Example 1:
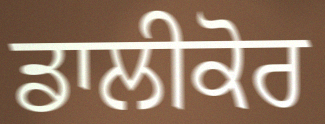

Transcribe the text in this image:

ਡਾਲੀਕੋਰ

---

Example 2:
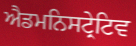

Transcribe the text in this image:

ਐਡਮਨਿਸਟ੍ਰੇਟਿਵ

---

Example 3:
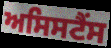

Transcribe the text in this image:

ਅਸਿਸਟੈਂਸ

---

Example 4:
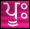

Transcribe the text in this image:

ਪੂਃ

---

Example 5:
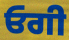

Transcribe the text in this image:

ਓਗੀ